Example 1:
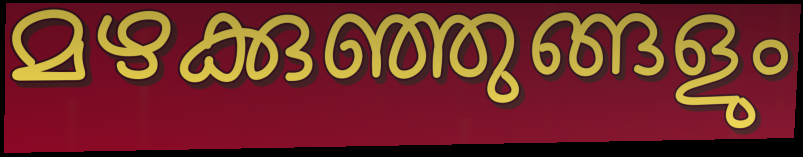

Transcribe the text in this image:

മഴക്കുഞ്ഞുങ്ങളും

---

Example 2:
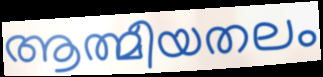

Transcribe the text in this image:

ആത്മീയതലം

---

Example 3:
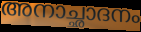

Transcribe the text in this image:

അനാച്ഛാദനം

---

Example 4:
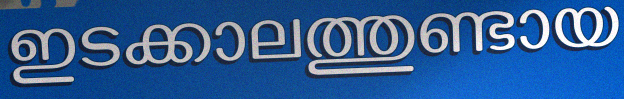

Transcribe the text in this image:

ഇടക്കാലത്തുണ്ടായ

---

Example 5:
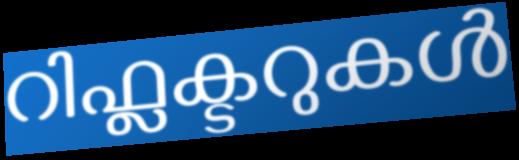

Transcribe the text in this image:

റിഫ്ലക്ടറുകൾ